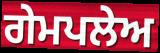
ਗੇਮਪਲੇਅ